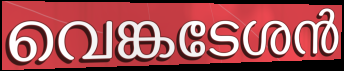
വെങ്കടേശൻ